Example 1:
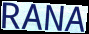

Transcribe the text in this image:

RANA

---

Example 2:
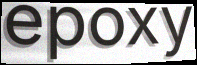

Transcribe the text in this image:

epoxy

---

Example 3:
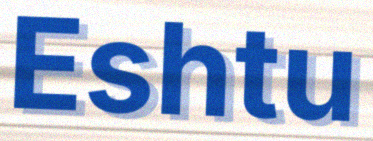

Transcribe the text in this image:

Eshtu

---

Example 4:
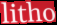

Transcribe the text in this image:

litho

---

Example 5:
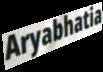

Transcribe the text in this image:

Aryabhatia